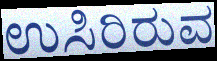
ಉಸಿರಿರುವ